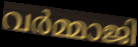
വർമ്മാജി